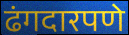
ढंगदारपणे